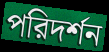
পরিদর্শন